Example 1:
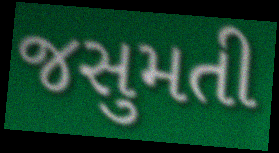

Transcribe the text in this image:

જસુમતી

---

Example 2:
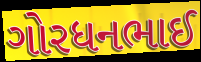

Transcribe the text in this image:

ગોરધનભાઈ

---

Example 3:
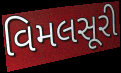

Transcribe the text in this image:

વિમલસૂરી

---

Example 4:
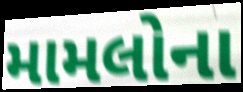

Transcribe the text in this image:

મામલોના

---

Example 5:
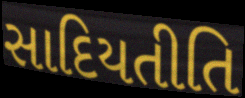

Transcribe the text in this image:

સાદિયતીતિ